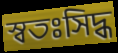
স্বতঃসিদ্ধ